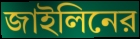
জাইলিনের